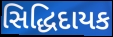
સિદ્ધિદાયક